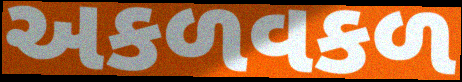
અકળવકળ